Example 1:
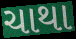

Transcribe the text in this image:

ચાથા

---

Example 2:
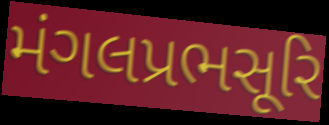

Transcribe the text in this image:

મંગલપ્રભસૂરિ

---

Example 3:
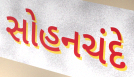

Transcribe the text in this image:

સોહનચંદે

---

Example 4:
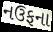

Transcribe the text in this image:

નઉફના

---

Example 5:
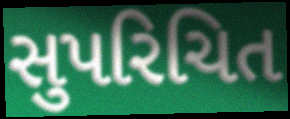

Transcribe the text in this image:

સુપરિચિત